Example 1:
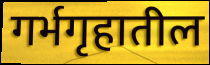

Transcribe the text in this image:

गर्भगृहातील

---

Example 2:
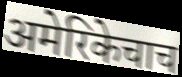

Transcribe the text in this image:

अमेरिकेचाच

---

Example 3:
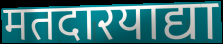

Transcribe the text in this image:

मतदारयाद्या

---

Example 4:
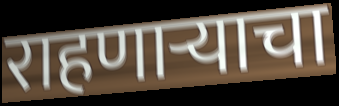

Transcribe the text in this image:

राहणाऱ्याचा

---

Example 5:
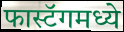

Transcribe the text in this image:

फास्टॅगमध्ये